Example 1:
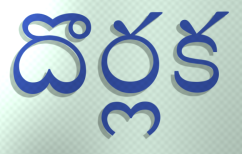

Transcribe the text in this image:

దొర్లక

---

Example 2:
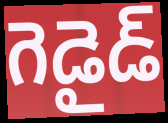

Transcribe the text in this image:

గెడైడ్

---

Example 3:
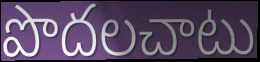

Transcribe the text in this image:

పొదలచాటు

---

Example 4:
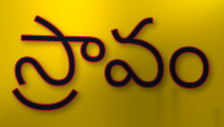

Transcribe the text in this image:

స్రావం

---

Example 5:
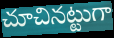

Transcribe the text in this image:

చూచినట్టుగా